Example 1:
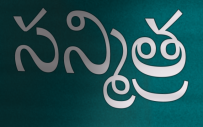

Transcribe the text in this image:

సన్మిత్ర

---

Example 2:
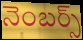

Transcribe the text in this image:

నెంబర్స్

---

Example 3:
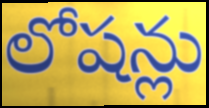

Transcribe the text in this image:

లోషన్లు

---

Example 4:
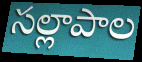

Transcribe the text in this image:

సల్లాపాల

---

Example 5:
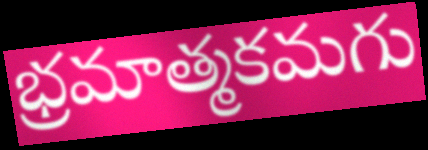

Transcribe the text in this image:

భ్రమాత్మకమగు